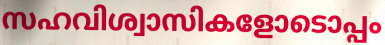
സഹവിശ്വാസികളോടൊപ്പം